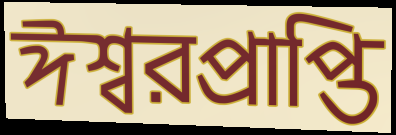
ঈশ্বরপ্রাপ্তি